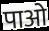
पाओ